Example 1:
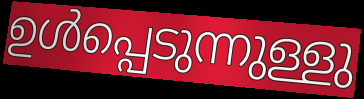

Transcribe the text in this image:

ഉൾപ്പെടുന്നുള്ളു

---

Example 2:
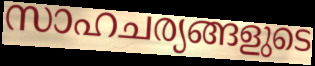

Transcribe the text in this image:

സാഹചര്യങ്ങളുടെ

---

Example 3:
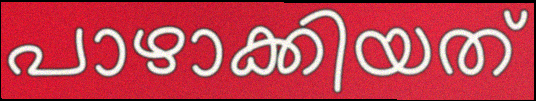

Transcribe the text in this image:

പാഴാക്കിയത്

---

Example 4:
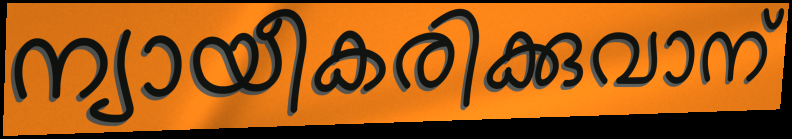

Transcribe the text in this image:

ന്യായീകരിക്കുവാന്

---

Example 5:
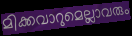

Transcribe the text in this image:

മിക്കവാറുമെല്ലാവരും